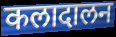
कलादालन